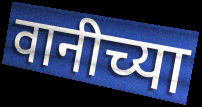
वानीच्या